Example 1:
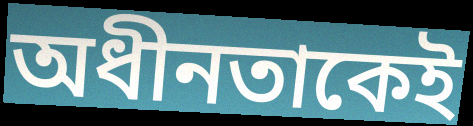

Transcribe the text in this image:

অধীনতাকেই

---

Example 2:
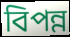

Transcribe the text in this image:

বিপন্ন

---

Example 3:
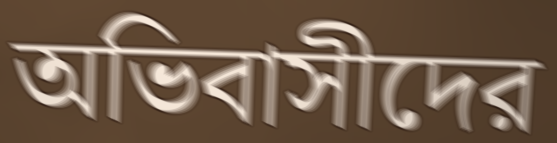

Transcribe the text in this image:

অভিবাসীদের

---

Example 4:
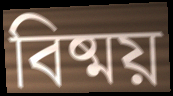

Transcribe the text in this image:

বিষ্ময়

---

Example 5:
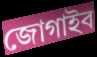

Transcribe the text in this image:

জোগাইব